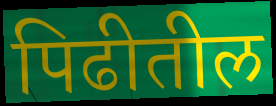
पिढीतील